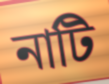
নাটি